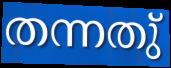
തന്നതു്